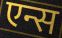
एन्स